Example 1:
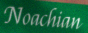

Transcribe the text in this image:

Noachian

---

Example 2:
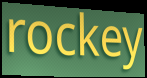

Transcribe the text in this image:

rockey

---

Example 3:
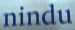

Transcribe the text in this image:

nindu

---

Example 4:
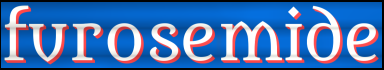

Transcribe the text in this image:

furosemide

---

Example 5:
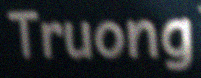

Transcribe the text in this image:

Truong